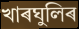
খাৰঘুলিৰ